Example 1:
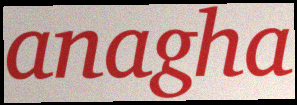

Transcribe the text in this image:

anagha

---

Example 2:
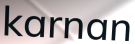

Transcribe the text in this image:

karnan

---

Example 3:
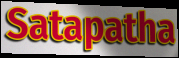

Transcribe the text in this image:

Satapatha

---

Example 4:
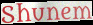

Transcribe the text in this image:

Shunem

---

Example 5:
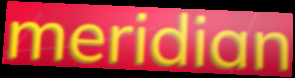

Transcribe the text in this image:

meridian